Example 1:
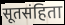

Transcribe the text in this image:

सूतसंहिता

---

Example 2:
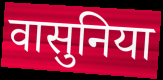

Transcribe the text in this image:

वासुनिया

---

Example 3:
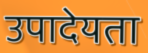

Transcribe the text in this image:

उपादेयता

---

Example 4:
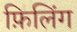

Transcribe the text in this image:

फ़िलिंग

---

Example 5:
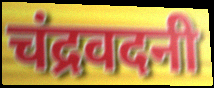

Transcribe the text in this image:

चंद्रवदनी